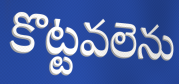
కొట్టవలెను